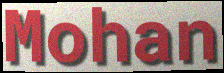
Mohan